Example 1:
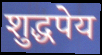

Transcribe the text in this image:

शुद्धपेय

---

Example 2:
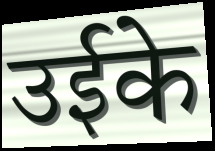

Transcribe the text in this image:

उईके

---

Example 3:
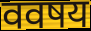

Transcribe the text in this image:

ववषय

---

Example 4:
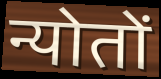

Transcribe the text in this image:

न्योतों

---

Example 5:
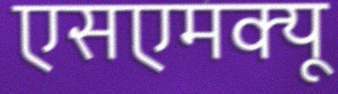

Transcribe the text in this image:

एसएमक्यू